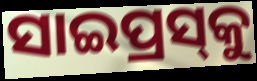
ସାଇପ୍ରସ୍‌କୁ